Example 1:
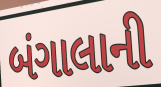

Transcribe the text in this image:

બંગાલાની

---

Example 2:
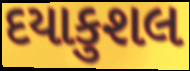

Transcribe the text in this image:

દયાકુશલ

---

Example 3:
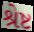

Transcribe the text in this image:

શ્રેષ્ટ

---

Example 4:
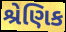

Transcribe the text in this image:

શ્રેણિક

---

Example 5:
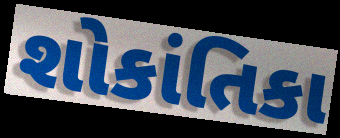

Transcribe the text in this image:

શોકાંતિકા